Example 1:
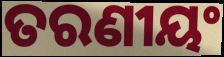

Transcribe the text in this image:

ତରଣୀୟଂ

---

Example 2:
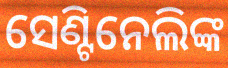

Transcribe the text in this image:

ସେଣ୍ଟିନେଲିଙ୍କ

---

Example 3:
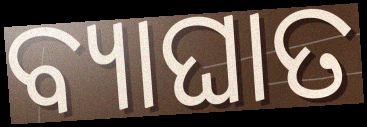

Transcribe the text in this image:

ବ୍ୟାଘାତ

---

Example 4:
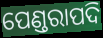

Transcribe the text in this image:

ପେଣ୍ଡରାପଦି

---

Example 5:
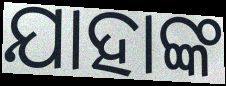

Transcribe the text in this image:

ଯାହାଙ୍କ